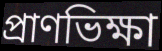
প্রাণভিক্ষা